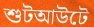
শুটআউটে